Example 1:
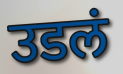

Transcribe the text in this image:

उडलं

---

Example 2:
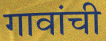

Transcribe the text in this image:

गावांची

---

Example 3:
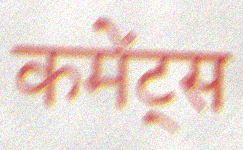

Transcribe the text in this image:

कमेंट्‌स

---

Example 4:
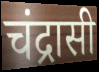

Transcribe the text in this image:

चंद्रासी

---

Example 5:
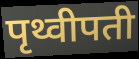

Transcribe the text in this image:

पृथ्वीपती